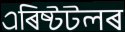
এৰিষ্টটলৰ